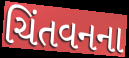
ચિંતવનના